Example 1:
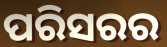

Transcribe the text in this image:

ପରିସରର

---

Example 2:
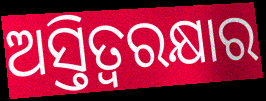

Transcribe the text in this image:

ଅସ୍ତିତ୍ୱରକ୍ଷାର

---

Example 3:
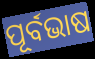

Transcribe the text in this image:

ପୂର୍ବଭାଷ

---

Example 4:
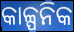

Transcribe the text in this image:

କାଳ୍ପନିକ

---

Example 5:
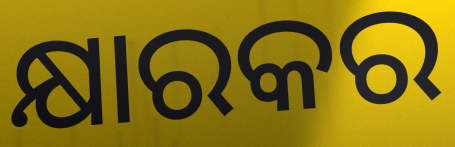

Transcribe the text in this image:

କ୍ଷାରକର